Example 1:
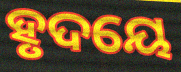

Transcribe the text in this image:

ହୃଦୟେ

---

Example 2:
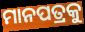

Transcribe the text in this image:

ମାନପତ୍ରକୁ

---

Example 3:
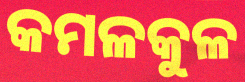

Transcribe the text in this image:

କମଳକୁଳ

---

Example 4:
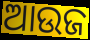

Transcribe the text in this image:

ଆଉଜ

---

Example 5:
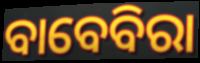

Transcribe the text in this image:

ବାବେବିରା